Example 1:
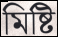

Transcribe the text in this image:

মিষ্টি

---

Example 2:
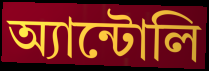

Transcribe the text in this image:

অ্যান্টোলি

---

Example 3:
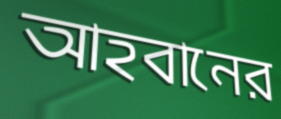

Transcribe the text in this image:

আহবানের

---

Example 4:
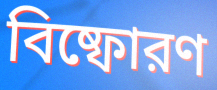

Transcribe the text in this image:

বিষ্ফোরণ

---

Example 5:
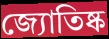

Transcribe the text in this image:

জ্যোতিষ্ক